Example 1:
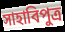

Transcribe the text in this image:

সাহাবিপুত্র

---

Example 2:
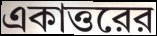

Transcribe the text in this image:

একাত্তরের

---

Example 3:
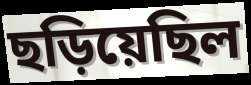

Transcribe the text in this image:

ছড়িয়েছিল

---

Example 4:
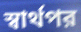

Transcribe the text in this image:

স্বার্থপর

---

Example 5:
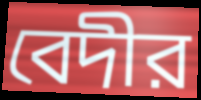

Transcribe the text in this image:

বেদীর